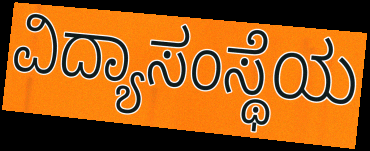
ವಿದ್ಯಾಸಂಸ್ಥೆಯ